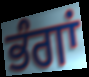
ਭੰਗਾਂ